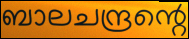
ബാലചന്ദ്രന്റെ